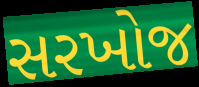
સરખોજ